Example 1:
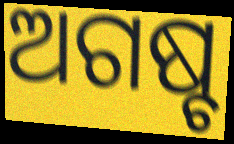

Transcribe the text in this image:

ଅଗଷ୍ଚ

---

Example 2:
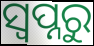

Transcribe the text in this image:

ସ୍ୱପ୍ନରୁ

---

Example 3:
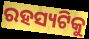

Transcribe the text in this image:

ରହସ୍ୟଟିକୁ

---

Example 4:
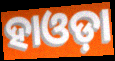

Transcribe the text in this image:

ହାଓଡ଼ା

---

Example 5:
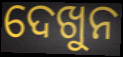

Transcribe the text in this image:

ଦେଖୁନ